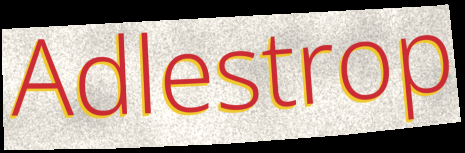
Adlestrop